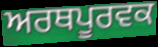
ਅਰਥਪੂਰਵਕ